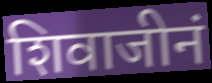
शिवाजीनं